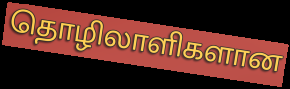
தொழிலாளிகளான